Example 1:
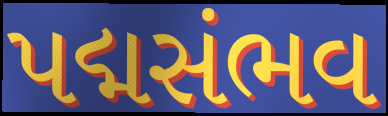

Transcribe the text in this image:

પદ્મસંભવ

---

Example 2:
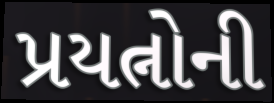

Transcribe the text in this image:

પ્રયત્નોની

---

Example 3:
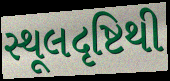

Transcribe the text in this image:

સ્થૂલદૃષ્ટિથી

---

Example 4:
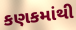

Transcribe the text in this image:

કણકમાંથી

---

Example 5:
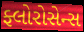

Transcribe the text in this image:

ફ્લોરોસેન્સ